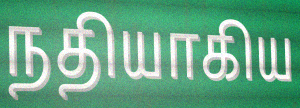
நதியாகிய